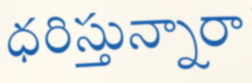
ధరిస్తున్నారా